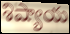
శిష్యాయ